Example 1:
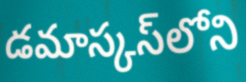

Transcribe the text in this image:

డమాస్కస్‌లోని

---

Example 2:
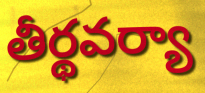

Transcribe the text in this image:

తీర్థవర్యా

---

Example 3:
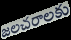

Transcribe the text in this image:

జలచరాలకు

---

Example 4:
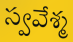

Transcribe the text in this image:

స్వవేశ్మ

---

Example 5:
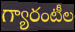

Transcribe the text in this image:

గ్యారంటీల